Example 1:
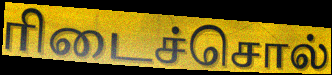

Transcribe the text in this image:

ரிடைச்சொல்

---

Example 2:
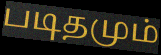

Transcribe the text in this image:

படிதமும்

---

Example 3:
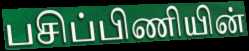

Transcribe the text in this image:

பசிப்பிணியின்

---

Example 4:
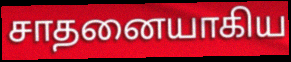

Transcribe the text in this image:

சாதனையாகிய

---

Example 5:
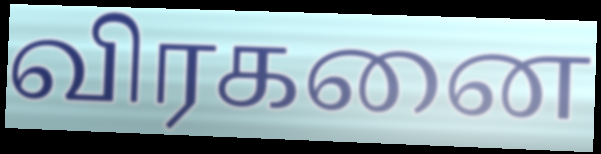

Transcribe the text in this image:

விரகனை